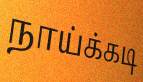
நாய்க்கடி